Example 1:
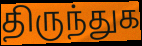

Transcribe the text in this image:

திருந்துக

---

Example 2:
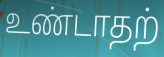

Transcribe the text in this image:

உண்டாதற்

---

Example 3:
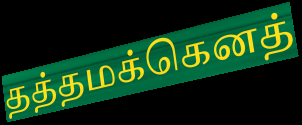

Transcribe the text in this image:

தத்தமக்கெனத்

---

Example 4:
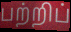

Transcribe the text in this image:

பற்றிப்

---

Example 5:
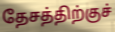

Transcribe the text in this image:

தேசத்திற்குச்